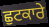
ਛੁਟਕਾਰੇ